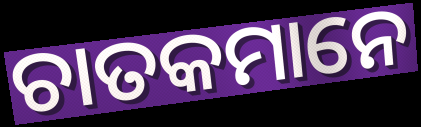
ଚାତକମାନେ